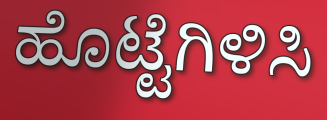
ಹೊಟ್ಟೆಗಿಳಿಸಿ